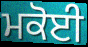
ਮਕੋਈ